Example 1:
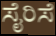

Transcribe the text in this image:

ಸೈರಿಸೆ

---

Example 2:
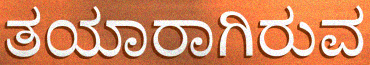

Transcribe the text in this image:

ತಯಾರಾಗಿರುವ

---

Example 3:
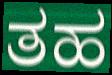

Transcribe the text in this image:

ತಹ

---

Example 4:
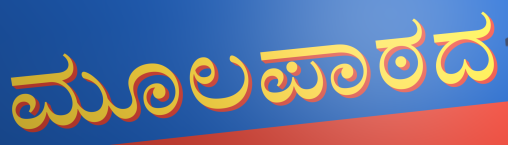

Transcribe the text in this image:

ಮೂಲಪಾಠದ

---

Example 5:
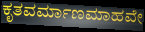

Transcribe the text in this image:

ಕೃತವರ್ಮಾಣಮಾಹವೇ